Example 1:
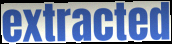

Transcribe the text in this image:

extracted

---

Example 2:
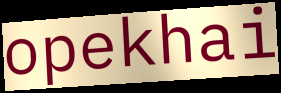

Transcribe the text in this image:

opekhai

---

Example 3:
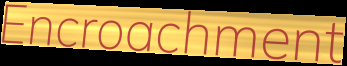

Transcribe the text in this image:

Encroachment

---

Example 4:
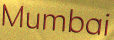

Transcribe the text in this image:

Mumbai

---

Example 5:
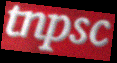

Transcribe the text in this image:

tnpsc